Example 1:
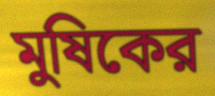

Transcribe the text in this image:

মুষিকের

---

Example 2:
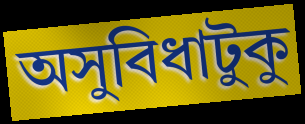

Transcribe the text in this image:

অসুবিধাটুকু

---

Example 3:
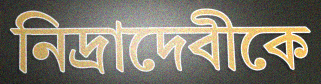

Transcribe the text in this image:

নিদ্রাদেবীকে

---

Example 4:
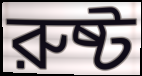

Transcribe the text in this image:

রুষ্ট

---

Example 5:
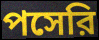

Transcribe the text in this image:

পসেরি